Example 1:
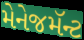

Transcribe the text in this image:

મેનેજમૅન્ટ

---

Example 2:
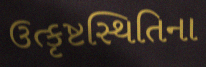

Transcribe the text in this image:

ઉત્કૃષ્ટસ્થિતિના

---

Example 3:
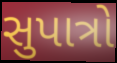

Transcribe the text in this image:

સુપાત્રો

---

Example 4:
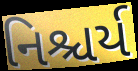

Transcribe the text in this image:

નિશ્ચર્ય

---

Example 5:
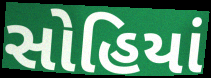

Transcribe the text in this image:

સોહિયાં